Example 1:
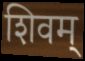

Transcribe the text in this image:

शिवम्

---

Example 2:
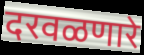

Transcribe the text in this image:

दरवळणारे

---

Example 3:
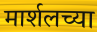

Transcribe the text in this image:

मार्शलच्या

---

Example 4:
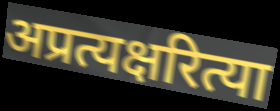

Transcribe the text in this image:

अप्रत्यक्षरित्या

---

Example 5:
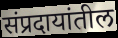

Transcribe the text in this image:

संप्रदायांतील